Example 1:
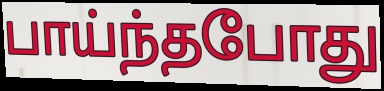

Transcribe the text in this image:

பாய்ந்தபோது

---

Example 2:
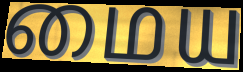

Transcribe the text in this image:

மைய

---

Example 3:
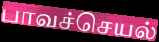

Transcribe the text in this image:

பாவச்செயல்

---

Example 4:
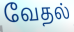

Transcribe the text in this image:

வேதல்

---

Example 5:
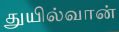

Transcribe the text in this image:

துயில்வான்